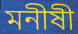
মনীষী